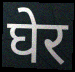
घेर